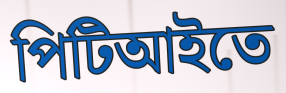
পিটিআইতে